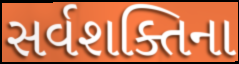
સર્વશક્તિના